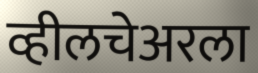
व्हीलचेअरला